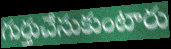
గుర్తుచేసుకుంటారు